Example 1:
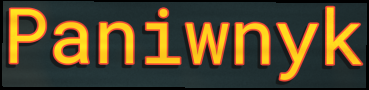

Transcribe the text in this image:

Paniwnyk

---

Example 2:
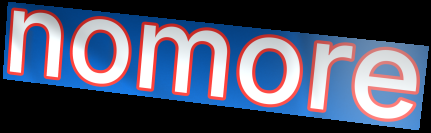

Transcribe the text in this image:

nomore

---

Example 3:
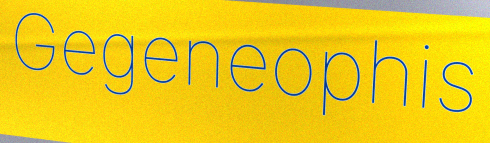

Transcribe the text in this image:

Gegeneophis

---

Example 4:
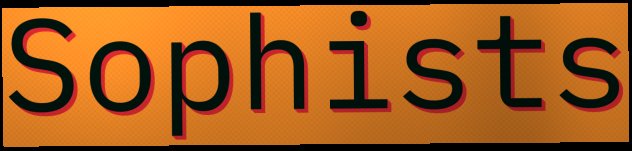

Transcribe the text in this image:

Sophists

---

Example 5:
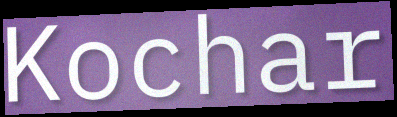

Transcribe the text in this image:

Kochar